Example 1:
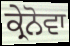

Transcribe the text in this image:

ਕ੍ਰੇਨੋਵਾ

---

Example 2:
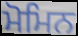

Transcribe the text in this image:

ਮੋਮਿਨ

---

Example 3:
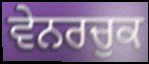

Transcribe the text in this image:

ਵੇਨਰਚੁਕ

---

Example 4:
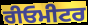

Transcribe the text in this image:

ਰੀਓਮੀਟਰ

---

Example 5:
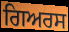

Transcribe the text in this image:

ਗਿਅਰਸ